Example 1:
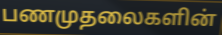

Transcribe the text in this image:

பணமுதலைகளின்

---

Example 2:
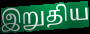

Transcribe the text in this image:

இறுதிய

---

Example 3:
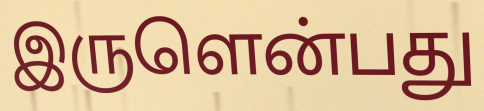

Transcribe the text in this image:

இருளென்பது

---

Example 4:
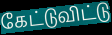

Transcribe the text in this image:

கேட்டுவிட்டு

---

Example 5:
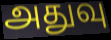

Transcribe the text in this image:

அதுவு